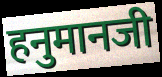
हनुमानजी